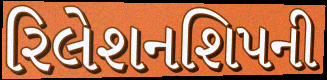
રિલેશનશિપની